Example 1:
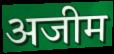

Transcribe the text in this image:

अजीम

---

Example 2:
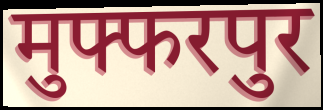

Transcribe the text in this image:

मुफ्फरपुर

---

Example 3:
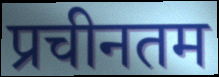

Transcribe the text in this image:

प्रचीनतम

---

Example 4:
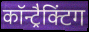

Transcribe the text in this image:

कॉन्ट्रैक्टिंग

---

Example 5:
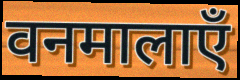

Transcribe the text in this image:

वनमालाएँ